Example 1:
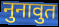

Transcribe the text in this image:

नुनावुत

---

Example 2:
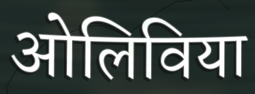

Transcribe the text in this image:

ओलिविया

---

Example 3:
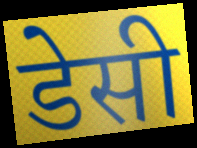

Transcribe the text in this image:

डेसी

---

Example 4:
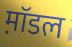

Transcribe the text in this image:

म़ॉडल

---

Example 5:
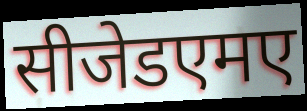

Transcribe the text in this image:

सीजेडएमए